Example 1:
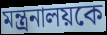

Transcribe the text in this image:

মন্ত্রনালয়কে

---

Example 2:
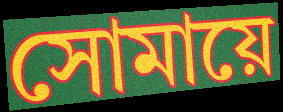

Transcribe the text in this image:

সোমায়ে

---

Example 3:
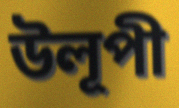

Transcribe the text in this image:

উলূপী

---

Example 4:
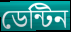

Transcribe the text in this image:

ডেন্টিন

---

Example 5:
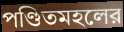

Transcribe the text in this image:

পণ্ডিতমহলের